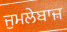
ਜੁਮਲੇਬਾਜ਼